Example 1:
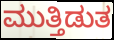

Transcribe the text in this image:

ಮುತ್ತಿಡುತ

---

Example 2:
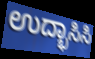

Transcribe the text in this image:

ಉದ್ಭಾಸಿಸಿ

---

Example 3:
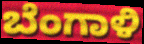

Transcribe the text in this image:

ಬೆಂಗಾಳಿ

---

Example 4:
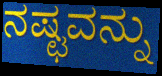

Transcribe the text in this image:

ನಷ್ಟವನ್ನು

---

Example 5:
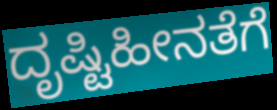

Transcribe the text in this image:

ದೃಷ್ಟಿಹೀನತೆಗೆ